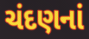
ચંદણનાં